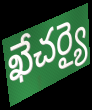
ఖేచర్యై